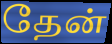
தேன்